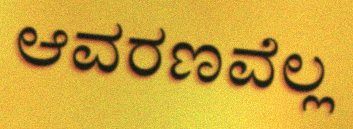
ಆವರಣವೆಲ್ಲ